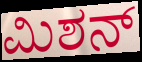
ಮಿಶನ್